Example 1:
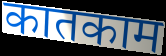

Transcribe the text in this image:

कातकाम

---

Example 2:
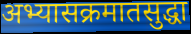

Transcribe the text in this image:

अभ्यासक्रमातसुद्धा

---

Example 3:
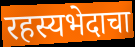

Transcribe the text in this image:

रहस्यभेदाचा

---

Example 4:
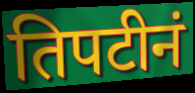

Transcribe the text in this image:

तिपटीनं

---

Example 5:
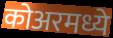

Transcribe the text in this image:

कोअरमध्ये